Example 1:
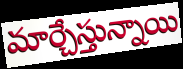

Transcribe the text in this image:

మార్చేస్తున్నాయి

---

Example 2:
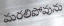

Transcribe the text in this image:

మరలిపోవును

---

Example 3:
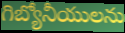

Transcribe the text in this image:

గిబ్యోనీయులను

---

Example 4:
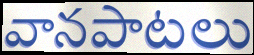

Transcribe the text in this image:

వానపాటలు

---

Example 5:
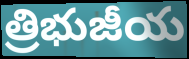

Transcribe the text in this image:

త్రిభుజీయ